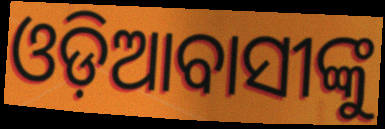
ଓଡ଼ିଆବାସୀଙ୍କୁ